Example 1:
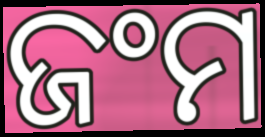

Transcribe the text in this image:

ଜଂମ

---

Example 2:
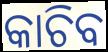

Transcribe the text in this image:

କାଚିବ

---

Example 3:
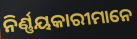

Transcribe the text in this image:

ନିର୍ଣ୍ଣୟକାରୀମାନେ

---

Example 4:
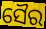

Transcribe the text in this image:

ସୈର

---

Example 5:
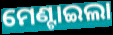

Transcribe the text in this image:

ମେଣ୍ଟାଇଲା